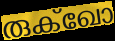
രുക്ഖോ